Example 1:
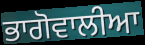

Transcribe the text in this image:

ਭਾਗੋਵਾਲੀਆ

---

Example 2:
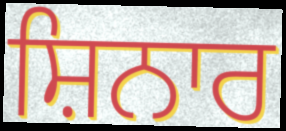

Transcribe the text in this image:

ਸ਼ਿਨਾਰ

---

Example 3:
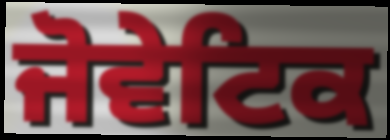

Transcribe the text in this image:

ਜੋਵੇਟਿਕ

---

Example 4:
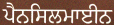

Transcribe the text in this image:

ਪੈਨਸਿਲਮਾਈਨ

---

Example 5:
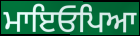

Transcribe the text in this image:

ਮਾਇਓਪਿਆ